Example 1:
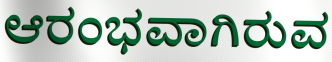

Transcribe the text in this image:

ಆರಂಭವಾಗಿರುವ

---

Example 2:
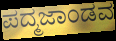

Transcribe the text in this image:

ಪದ್ಮಜಾಂಡವ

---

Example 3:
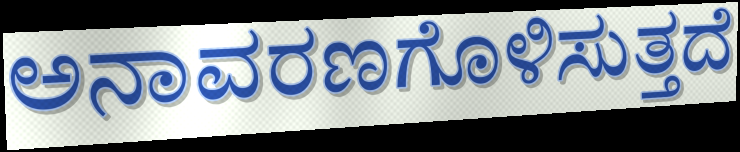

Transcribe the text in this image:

ಅನಾವರಣಗೊಳಿಸುತ್ತದೆ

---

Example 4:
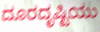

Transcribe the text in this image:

ದೂರದೃಷ್ಟಿಯು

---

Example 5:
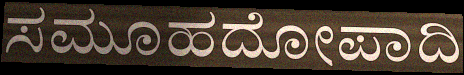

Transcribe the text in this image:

ಸಮೂಹದೋಪಾದಿ